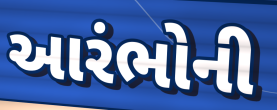
આરંભોની